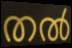
തൽ